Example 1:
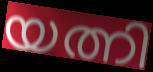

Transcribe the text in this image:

യത്നി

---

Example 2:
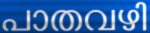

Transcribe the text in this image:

പാതവഴി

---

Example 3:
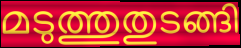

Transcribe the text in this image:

മടുത്തുതുടങ്ങി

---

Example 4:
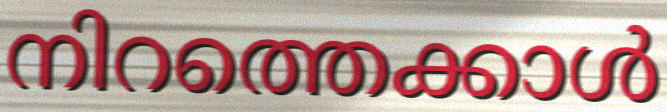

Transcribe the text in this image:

നിറത്തെക്കാൾ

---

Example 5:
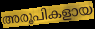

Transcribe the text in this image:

അരൂപികളായ